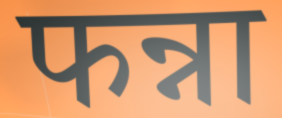
फन्ना